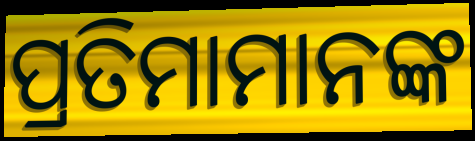
ପ୍ରତିମାମାନଙ୍କ